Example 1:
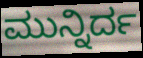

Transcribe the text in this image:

ಮುನ್ನಿರ್ದ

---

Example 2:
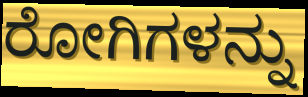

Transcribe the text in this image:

ರೋಗಿಗಳನ್ನು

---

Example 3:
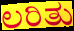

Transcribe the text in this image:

ಲರಿತು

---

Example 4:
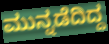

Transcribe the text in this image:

ಮುನ್ನಡೆದಿದ್ದ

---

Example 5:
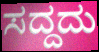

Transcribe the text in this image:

ಸದ್ದದು